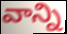
వాన్ని